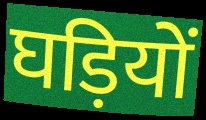
घड़ियों